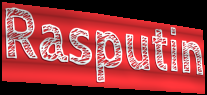
Rasputin